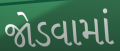
જોડવામાં